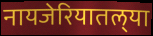
नायजेरियातल्या